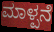
ಮಾಳ್ಪನೆ